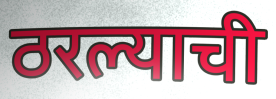
ठरल्याची